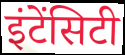
इंटेंसिटी